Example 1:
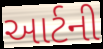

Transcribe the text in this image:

આર્ટની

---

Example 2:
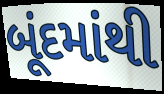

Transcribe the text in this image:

બૂંદમાંથી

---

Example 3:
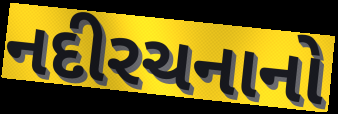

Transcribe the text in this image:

નદીરચનાનો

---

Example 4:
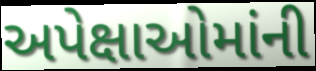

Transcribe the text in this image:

અપેક્ષાઓમાંની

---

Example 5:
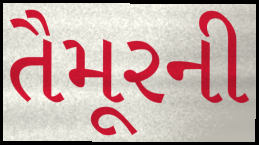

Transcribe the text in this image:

તૈમૂરની